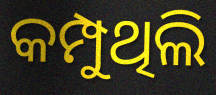
କମ୍ପୁଥିଲି